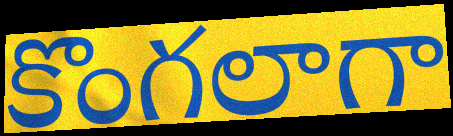
కొంగలాగా